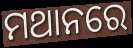
ମଥାନରେ